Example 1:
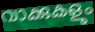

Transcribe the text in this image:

വാക്കുകളും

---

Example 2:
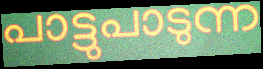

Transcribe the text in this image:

പാട്ടുപാടുന്ന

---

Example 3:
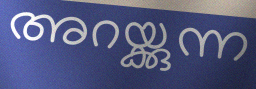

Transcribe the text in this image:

അറയ്ക്കുന്ന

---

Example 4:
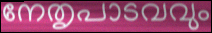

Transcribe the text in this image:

നേതൃപാടവവും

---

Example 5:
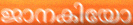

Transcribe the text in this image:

ജാനകിയോ